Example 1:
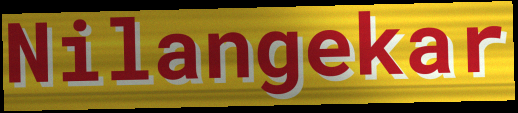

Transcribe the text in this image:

Nilangekar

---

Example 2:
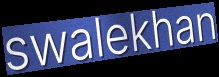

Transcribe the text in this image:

swalekhan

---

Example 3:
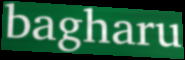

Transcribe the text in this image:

bagharu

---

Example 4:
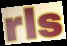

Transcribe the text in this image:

rls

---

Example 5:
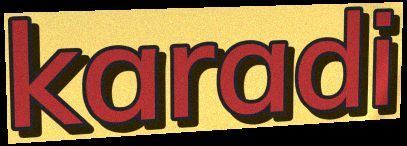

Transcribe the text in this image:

karadi